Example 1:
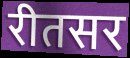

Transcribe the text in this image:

रीतसर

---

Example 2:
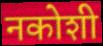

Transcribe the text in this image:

नकोशी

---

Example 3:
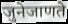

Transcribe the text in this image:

जुनेजाणते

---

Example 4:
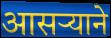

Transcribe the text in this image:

आसर्‍याने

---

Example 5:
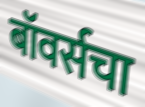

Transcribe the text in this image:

बॉवर्सचा